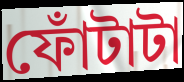
ফোঁটাটা